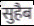
सुहैब